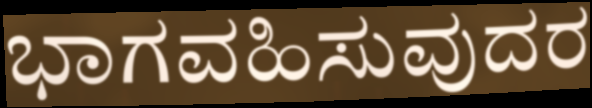
ಭಾಗವಹಿಸುವುದರ